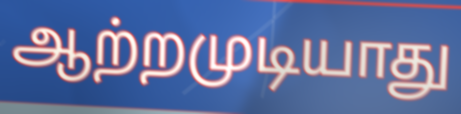
ஆற்றமுடியாது